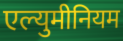
एल्युमीनियम